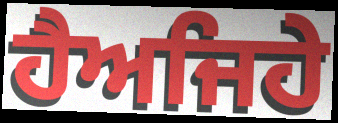
ਹੈਅਜਿਹੇ